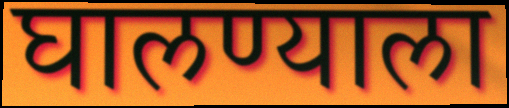
घालण्याला